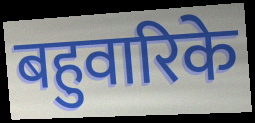
बहुवारिके